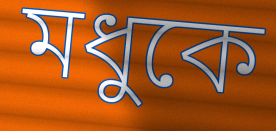
মধুকে